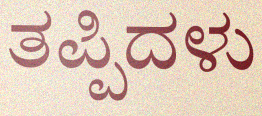
ತಪ್ಪಿದಳು